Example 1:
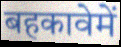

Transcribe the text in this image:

बहकावेमें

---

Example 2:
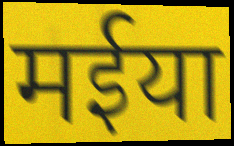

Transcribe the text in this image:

मईया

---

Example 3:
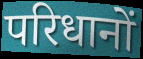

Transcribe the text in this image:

परिधानों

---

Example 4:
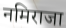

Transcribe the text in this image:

नमिराजा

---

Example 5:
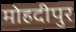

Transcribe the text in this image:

मोहदीपुर